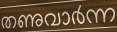
തണുവാർന്ന